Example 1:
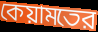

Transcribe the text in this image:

কেয়ামতের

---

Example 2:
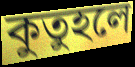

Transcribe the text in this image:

কুতুহলে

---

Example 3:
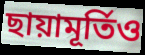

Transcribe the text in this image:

ছায়ামূর্তিও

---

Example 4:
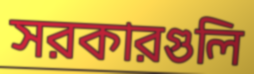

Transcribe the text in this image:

সরকারগুলি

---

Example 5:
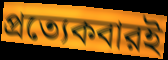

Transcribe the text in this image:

প্রত্যেকবারই